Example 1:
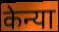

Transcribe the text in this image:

केन्या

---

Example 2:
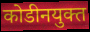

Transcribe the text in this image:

कोडीनयुक्त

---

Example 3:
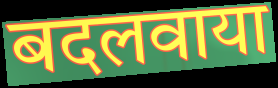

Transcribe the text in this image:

बदलवाया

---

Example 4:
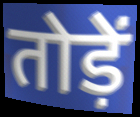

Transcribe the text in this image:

तोड़ें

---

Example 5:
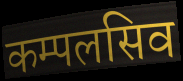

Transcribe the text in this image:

कम्पलसिव